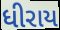
ધીરાય